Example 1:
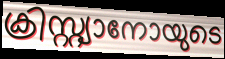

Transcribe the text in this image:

ക്രിസ്റ്റ്യാനോയുടെ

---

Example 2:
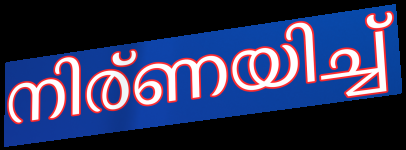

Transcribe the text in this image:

നിര്ണയിച്ച്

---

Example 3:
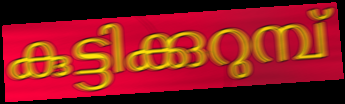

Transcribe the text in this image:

കുട്ടിക്കുറുമ്പ്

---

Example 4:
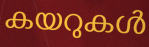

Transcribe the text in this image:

കയറുകൾ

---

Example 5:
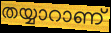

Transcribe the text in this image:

തയ്യാറാണ്